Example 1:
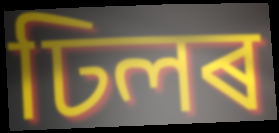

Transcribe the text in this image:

ঢিলৰ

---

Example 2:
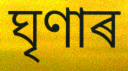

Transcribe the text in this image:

ঘৃণাৰ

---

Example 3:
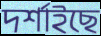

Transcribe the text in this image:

দৰ্শাইছে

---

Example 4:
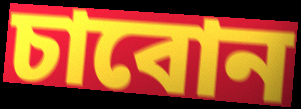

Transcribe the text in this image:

চাবোন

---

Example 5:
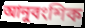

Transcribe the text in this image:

আনুবংশিক